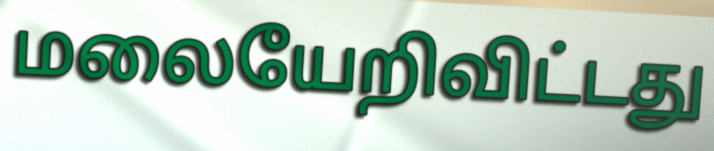
மலையேறிவிட்டது